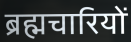
ब्रह्मचारियों